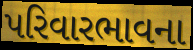
પરિવારભાવના